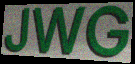
JWG